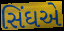
સિંઘએ